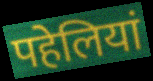
पहेलियां